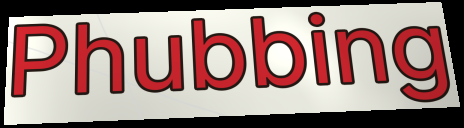
Phubbing